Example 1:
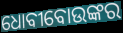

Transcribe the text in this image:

ଧୋବୀବୋଉଙ୍କର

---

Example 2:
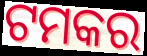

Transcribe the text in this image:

ଟମକର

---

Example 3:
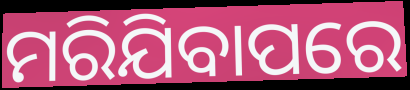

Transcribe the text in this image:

ମରିଯିବାପରେ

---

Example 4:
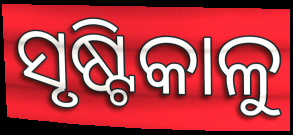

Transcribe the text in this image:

ସୃଷ୍ଟିକାଳୁ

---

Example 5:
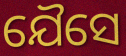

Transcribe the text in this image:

ଯୈସେ